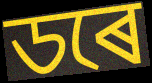
ডৰে